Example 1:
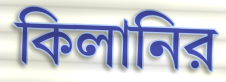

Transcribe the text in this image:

কিলানির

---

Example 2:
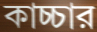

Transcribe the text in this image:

কাচ্চার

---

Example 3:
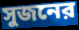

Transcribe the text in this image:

সুজনের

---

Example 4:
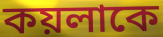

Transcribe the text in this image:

কয়লাকে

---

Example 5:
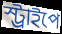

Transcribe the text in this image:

স্ট্রাইপে